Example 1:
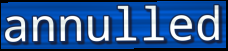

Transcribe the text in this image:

annulled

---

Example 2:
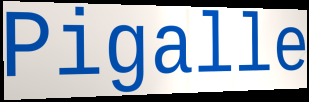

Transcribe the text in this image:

Pigalle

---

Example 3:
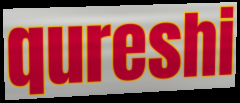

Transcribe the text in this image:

qureshi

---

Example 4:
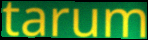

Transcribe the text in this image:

tarum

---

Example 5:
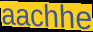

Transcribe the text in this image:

aachhe